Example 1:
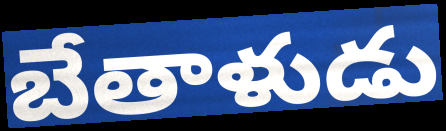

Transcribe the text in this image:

బేతాళుడు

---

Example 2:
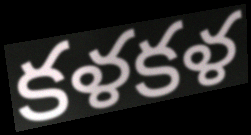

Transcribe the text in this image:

కళకళ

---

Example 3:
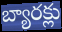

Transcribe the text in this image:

బ్యారక్లు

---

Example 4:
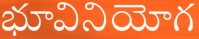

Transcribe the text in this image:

భూవినియోగ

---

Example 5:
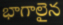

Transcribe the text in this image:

భాగాలైన